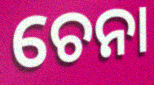
ଚେନା